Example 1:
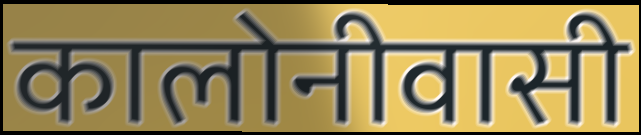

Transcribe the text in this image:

कालोनीवासी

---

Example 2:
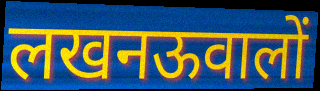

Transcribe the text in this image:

लखनऊवालों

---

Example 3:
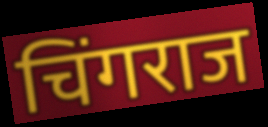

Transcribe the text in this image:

चिंगराज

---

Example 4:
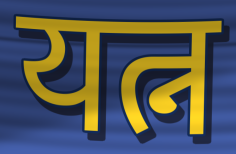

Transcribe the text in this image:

यत्न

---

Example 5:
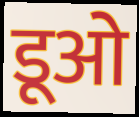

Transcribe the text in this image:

डूओ